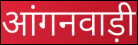
आंगनवाड़ी